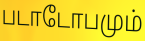
படாடோபமும்